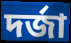
দৰ্জা